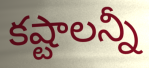
కష్టాలన్నీ